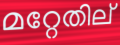
മറ്റേതില്